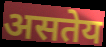
असतेय